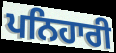
ਪਨਿਹਾਰੀ